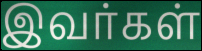
இவர்கள்